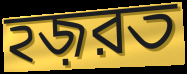
হজ়রত